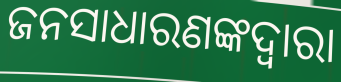
ଜନସାଧାରଣଙ୍କଦ୍ବାରା